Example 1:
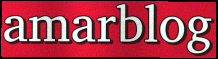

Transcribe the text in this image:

amarblog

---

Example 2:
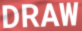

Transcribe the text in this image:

DRAW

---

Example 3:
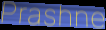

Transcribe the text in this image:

Prashne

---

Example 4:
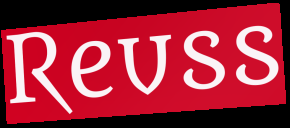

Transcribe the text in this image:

Reuss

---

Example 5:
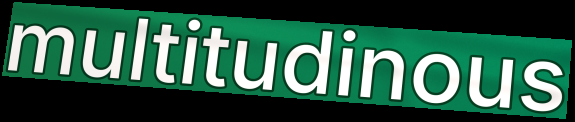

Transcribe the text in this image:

multitudinous